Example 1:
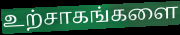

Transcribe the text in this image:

உற்சாகங்களை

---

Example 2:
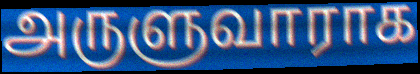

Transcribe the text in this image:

அருளுவாராக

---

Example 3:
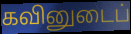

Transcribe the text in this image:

கவினுடைப்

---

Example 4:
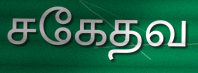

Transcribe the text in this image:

சகேதவ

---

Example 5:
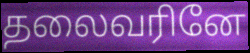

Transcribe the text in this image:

தலைவரினே